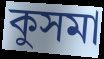
কুসমা